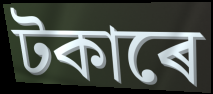
টকাৰে